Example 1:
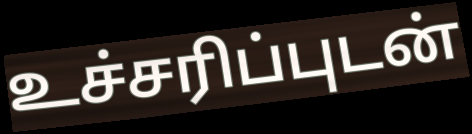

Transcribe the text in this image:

உச்சரிப்புடன்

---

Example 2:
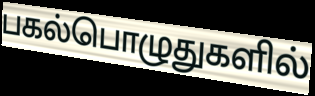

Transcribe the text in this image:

பகல்பொழுதுகளில்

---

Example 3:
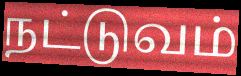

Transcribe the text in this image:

நட்டுவம்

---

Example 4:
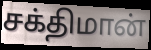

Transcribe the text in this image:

சக்திமான்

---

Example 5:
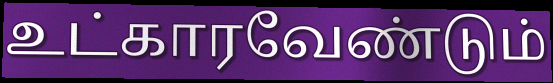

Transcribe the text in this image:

உட்காரவேண்டும்